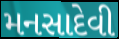
મનસાદેવી